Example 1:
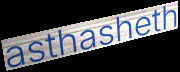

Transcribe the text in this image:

asthasheth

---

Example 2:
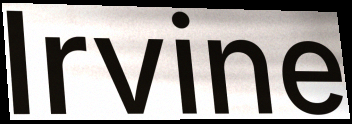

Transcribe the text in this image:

Irvine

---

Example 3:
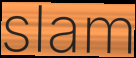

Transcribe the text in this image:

slam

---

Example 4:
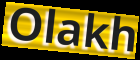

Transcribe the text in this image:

Olakh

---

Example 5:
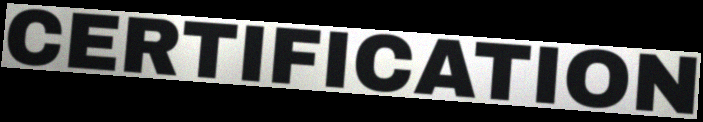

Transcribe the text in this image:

CERTIFICATION